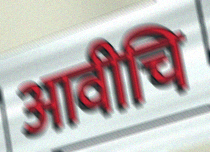
आवीचि